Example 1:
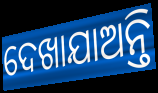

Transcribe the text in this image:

ଦେଖାଯାଅନ୍ତି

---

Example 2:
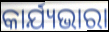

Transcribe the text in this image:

କାର୍ଯ୍ୟଭାରା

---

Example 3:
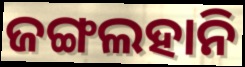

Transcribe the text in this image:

ଜଙ୍ଗଲହାନି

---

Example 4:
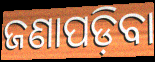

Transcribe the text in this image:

ଜଣାପଡ଼ିବା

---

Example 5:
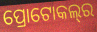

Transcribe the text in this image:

ପ୍ରୋଟୋକଲ୍‌ର